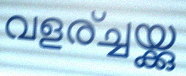
വളര്ച്ചയ്ക്കു